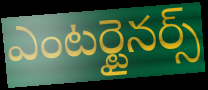
ఎంటర్టైనర్స్